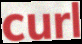
curl